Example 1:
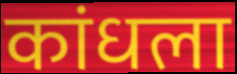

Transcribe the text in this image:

कांधला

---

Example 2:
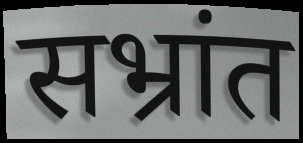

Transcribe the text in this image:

सभ्रांत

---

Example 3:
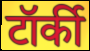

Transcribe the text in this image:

टॉर्की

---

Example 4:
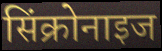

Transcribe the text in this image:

सिंक्रोनाइज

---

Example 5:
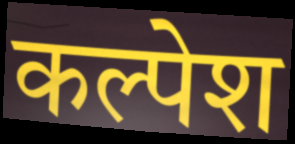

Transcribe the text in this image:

कल्पेश